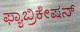
ಫ್ಯಾಬ್ರಿಕೇಷನ್